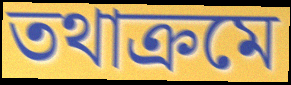
তথাক্ৰমে